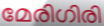
മേരിഗിരി